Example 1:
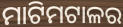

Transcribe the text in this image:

ମାଟିମଟାଳର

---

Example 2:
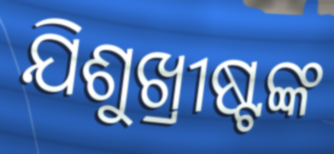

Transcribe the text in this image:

ଯିଶୁଖ୍ରୀଷ୍ଟଙ୍କ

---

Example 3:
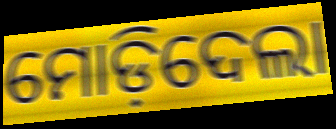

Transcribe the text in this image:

ମୋଡ଼ିଦେଲା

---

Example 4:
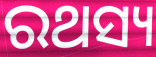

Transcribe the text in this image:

ରଥସ୍ୟ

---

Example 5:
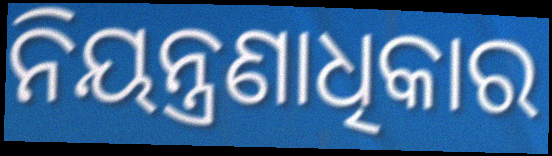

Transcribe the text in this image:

ନିୟନ୍ତ୍ରଣାଧିକାର